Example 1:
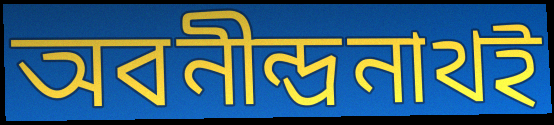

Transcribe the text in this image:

অবনীন্দ্রনাথই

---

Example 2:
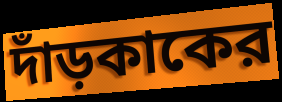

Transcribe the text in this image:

দাঁড়কাকের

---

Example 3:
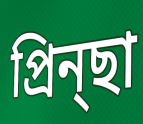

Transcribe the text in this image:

প্রিন্ছা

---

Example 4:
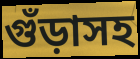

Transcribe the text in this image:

গুঁড়াসহ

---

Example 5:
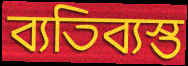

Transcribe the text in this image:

ব্যতিব্যস্ত